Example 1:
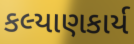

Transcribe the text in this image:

કલ્યાણકાર્ય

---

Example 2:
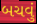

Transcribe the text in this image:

બચવું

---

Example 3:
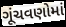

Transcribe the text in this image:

ગૂંચવણોમાં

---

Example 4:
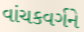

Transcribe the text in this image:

વાંચકવર્ગને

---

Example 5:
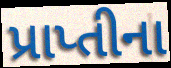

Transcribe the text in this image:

પ્રાપ્તીના